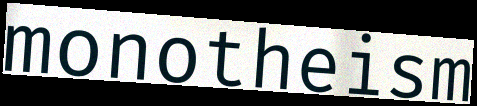
monotheism